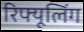
रिफ्यूलिंग